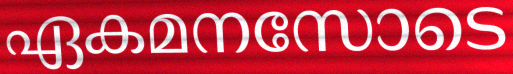
ഏകമനസോടെ